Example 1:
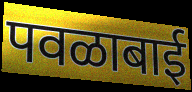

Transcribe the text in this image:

पवळाबाई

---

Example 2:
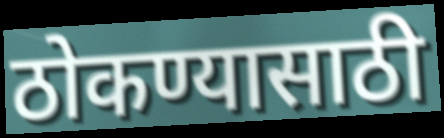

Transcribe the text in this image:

ठोकण्यासाठी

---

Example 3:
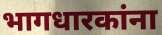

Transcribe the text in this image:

भागधारकांना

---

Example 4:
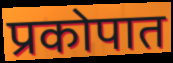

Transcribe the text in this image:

प्रकोपात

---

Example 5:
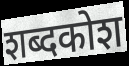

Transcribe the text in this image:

शब्दकोश